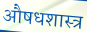
औषधशास्त्र